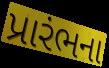
પ્રારંભના